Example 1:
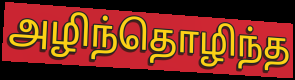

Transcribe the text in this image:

அழிந்தொழிந்த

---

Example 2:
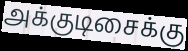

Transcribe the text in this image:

அக்குடிசைக்கு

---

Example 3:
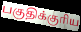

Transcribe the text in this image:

பகுதிக்குரிய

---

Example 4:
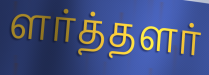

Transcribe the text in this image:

ளர்த்தளர்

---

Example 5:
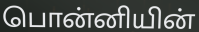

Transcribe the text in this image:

பொன்னியின்